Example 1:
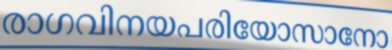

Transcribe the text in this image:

രാഗവിനയപരിയോസാനോ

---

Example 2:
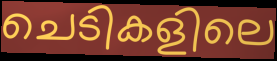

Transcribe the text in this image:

ചെടികളിലെ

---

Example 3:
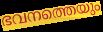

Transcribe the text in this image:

ഭവനത്തെയും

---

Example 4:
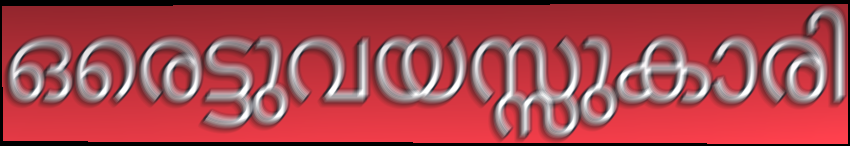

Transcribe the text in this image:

ഒരെട്ടുവയസ്സുകാരി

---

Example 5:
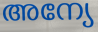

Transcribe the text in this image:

അന്യേ